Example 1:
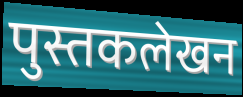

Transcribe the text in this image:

पुस्तकलेखन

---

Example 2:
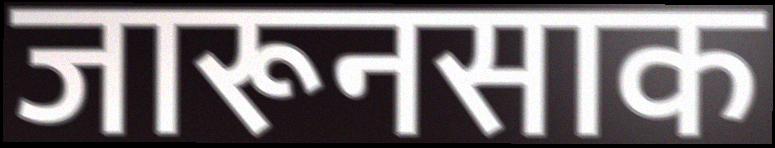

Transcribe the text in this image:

जारूनसाक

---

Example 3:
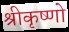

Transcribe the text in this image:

श्रीकृष्णो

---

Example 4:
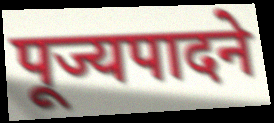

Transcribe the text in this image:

पूज्यपादने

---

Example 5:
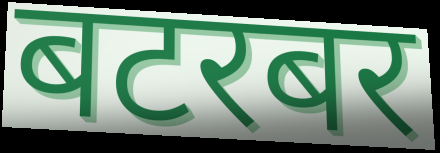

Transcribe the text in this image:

बटरबर